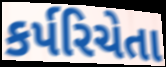
કર્પરિચેતા